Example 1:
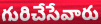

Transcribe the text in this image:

గురిచేసేవారు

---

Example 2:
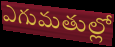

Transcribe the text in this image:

ఎగుమతుల్లో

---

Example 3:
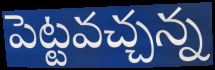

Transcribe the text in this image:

పెట్టవచ్చన్న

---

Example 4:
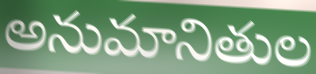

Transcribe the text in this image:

అనుమానితుల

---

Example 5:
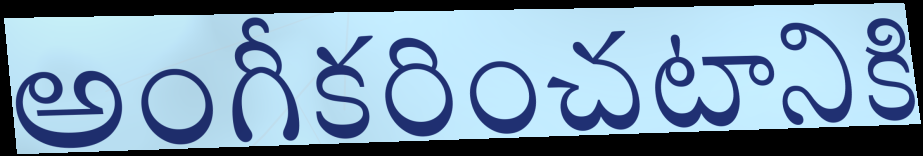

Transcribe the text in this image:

అంగీకరించటానికి